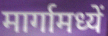
मार्गामध्यें